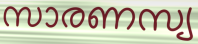
സാരണസ്യ